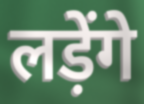
लड़ेंगे